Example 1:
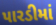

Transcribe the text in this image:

પારડીમાં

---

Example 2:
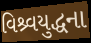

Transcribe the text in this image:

વિશ્ર્વયુદ્ધના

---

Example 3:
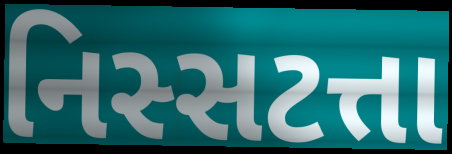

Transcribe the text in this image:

નિસ્સટત્તા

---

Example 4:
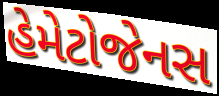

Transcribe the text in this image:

હેમેટોજેનસ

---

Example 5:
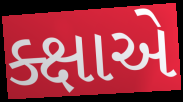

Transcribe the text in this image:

ક્ક્ષાએ